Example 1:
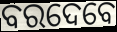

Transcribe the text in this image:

ବରଦେବେ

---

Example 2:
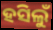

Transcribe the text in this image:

ହସିଲୁଁ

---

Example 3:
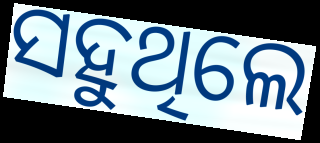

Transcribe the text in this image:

ସହୁଥିଲେ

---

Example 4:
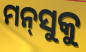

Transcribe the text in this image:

ମନ୍‌ସୁକୁ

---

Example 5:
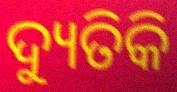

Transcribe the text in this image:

ଦ୍ୟୁତିକି